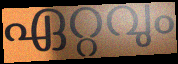
ഏറ്റവും